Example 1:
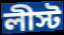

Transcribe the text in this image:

লীস্ট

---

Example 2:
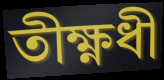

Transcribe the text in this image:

তীক্ষ্ণধী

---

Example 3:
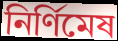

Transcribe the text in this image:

নির্ণিমেষ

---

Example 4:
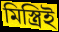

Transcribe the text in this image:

মিস্ত্রিই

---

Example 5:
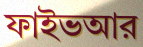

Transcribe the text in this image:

ফাইভআর